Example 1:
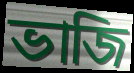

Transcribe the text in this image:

ভাজি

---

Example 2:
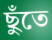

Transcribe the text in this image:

ছুঁতে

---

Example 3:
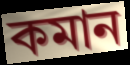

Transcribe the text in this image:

কমান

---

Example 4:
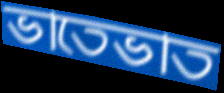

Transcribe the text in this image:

ভাতেভাত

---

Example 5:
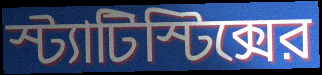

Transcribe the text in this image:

স্ট্যাটিস্টিক্সের